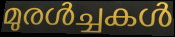
മുരൾച്ചകൾ